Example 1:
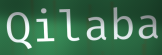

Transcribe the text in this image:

Qilaba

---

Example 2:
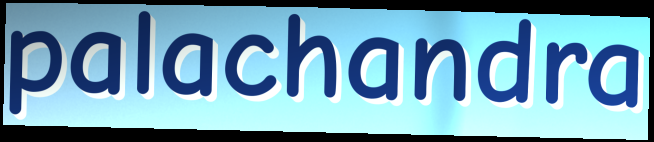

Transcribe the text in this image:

palachandra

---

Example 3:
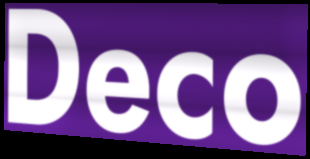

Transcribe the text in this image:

Deco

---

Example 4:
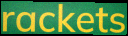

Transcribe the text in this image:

rackets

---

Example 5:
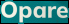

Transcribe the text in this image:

Opare